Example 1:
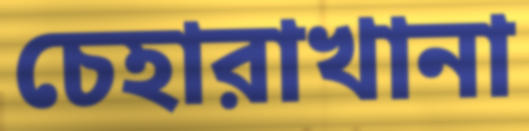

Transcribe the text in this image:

চেহারাখানা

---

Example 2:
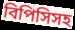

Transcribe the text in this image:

বিপিসিসহ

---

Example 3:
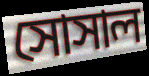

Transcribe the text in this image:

সোসাল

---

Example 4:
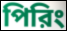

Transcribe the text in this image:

পিরিং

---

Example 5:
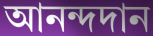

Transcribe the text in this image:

আনন্দদান